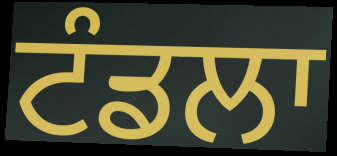
ਟੰਡਲਾ